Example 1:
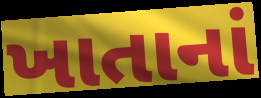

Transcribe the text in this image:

ખાતાનાં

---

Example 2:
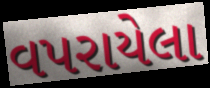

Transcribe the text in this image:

વપરાયેલા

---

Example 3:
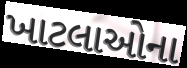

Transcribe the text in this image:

ખાટલાઓના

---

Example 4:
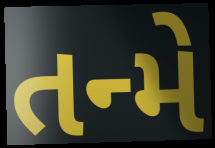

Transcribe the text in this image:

તન્મે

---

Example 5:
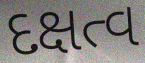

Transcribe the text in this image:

દક્ષત્વ